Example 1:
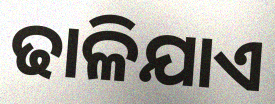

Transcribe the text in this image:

ଢାଳିଯାଏ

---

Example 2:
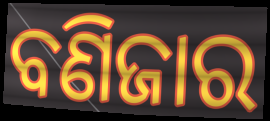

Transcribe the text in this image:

ବଣିଜାର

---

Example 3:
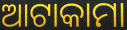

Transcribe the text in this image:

ଆଟାକାମା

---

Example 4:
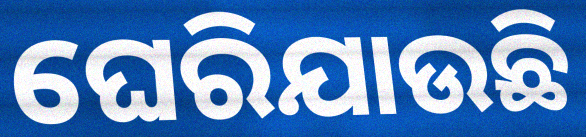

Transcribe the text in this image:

ଘେରିଯାଉଛି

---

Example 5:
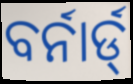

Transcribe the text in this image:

ବର୍ନାର୍ଡ୍